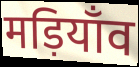
मड़ियाँव